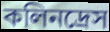
কলিনদ্রেস